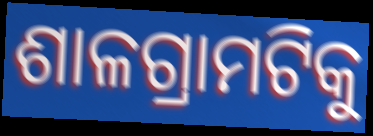
ଶାଳଗ୍ରାମଟିକୁ